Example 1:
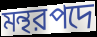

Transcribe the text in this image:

মন্থরপদে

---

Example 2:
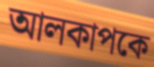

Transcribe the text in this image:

আলকাপকে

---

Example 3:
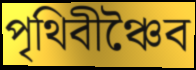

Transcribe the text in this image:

পৃথিবীঞ্চৈব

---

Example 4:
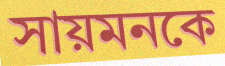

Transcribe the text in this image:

সায়মনকে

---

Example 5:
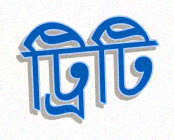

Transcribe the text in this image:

ট্রিটি